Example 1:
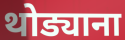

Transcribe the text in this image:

थोड्याना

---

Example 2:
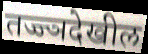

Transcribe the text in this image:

तज्ज्ञदेखील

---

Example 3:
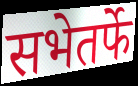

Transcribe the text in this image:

सभेतर्फे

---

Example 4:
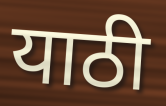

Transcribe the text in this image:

याठी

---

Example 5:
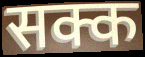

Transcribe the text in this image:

सक्क